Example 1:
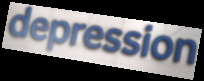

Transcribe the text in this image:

depression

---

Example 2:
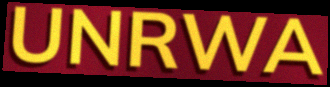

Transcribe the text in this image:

UNRWA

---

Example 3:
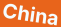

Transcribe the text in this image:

China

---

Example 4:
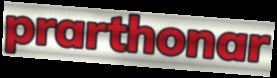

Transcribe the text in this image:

prarthonar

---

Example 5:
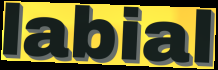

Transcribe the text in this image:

labial